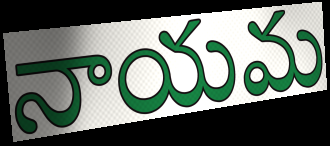
నాయమ